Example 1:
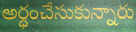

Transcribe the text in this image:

అర్ధంచేసుకున్నారు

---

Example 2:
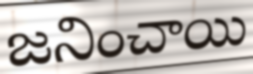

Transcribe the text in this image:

జనించాయి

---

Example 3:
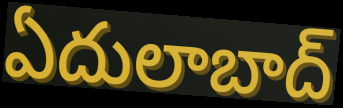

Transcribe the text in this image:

ఏదులాబాద్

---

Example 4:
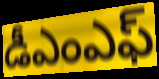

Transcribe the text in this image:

డీఎంఎఫ్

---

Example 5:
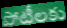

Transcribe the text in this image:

పోటీలకు